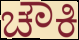
ಚೌಕಿ